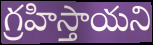
గ్రహిస్తాయని